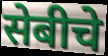
सेबीचे